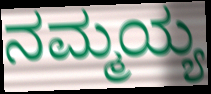
ನಮ್ಮಯ್ಯ